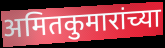
अमितकुमारांच्या